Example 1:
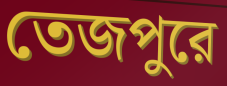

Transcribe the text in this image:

তেজপুরে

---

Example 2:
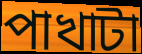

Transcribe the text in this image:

পাখাটা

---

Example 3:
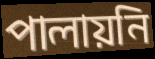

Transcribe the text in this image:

পালায়নি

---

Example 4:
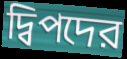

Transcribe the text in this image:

দ্বিপদের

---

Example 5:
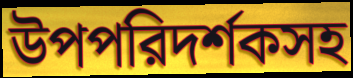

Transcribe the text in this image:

উপপরিদর্শকসহ